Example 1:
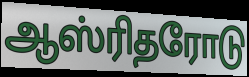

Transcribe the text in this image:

ஆஸ்ரிதரோடு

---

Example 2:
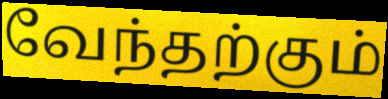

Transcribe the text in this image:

வேந்தற்கும்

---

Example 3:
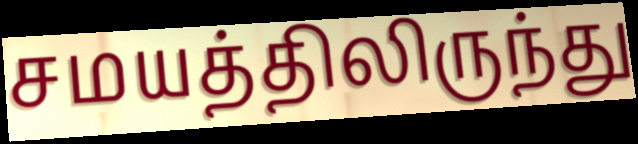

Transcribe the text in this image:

சமயத்திலிருந்து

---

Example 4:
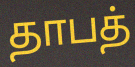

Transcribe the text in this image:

தாபத்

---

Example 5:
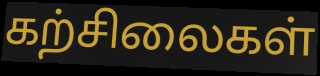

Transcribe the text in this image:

கற்சிலைகள்